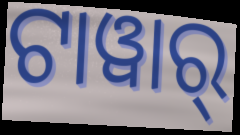
ଟାୱାର୍